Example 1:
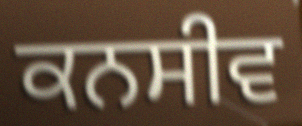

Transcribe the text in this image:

ਕਨਸੀਵ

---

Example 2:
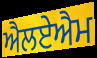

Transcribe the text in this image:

ਐਲਏਐਮ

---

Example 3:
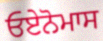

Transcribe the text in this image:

ਓਏਨੋਮਾਸ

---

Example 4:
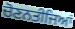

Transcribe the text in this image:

ਚੋਣਨਤੀਜਿਆਂ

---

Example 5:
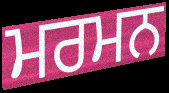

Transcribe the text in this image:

ਮਰਮਨ